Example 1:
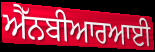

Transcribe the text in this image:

ਐੱਨਬੀਆਰਆਈ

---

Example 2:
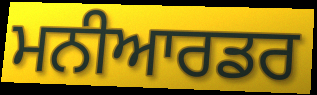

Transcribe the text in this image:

ਮਨੀਆਰਡਰ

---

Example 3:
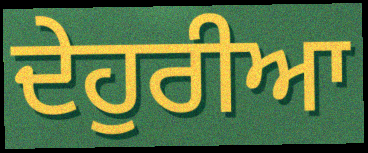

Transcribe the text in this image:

ਦੇਹੁਰੀਆ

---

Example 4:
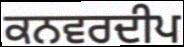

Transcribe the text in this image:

ਕਨਵਰਦੀਪ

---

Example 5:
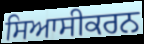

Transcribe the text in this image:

ਸਿਆਸੀਕਰਨ